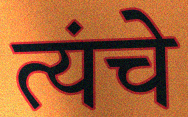
त्यंचे